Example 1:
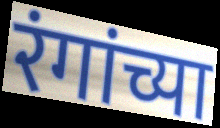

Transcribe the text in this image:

रंगांच्या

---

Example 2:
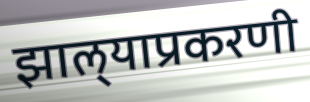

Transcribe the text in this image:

झाल्याप्रकरणी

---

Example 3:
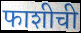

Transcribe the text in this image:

फाशीची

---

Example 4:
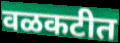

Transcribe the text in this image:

वळकटीत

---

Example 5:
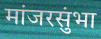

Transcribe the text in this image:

मांजरसुंभा